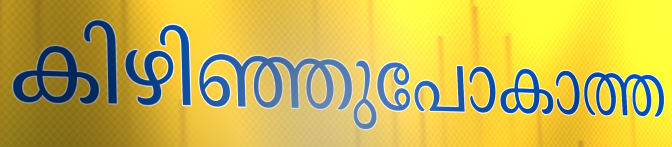
കിഴിഞ്ഞുപോകാത്ത